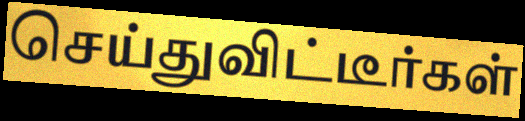
செய்துவிட்டீர்கள்